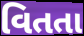
વિતતા